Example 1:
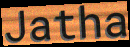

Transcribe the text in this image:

Jatha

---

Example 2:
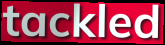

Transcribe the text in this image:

tackled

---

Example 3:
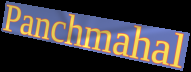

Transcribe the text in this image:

Panchmahal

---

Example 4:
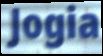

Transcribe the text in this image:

Jogia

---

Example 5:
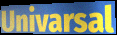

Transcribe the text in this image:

Univarsal